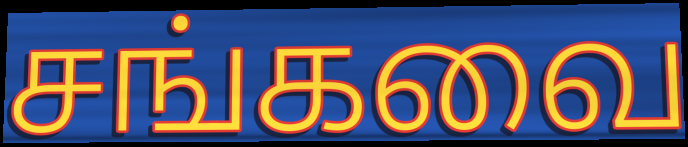
சங்கவை